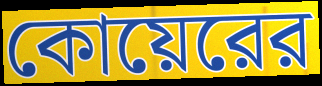
কোয়েরের